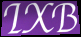
IXB